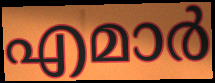
എമാർ